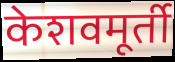
केशवमूर्ती